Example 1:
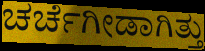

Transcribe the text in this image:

ಚರ್ಚೆಗೀಡಾಗಿತ್ತು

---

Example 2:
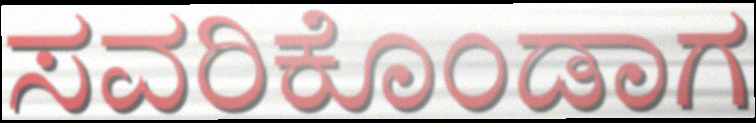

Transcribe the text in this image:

ಸವರಿಕೊಂಡಾಗ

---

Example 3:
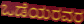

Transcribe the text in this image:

ಒಡೆಯರವರ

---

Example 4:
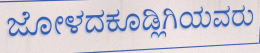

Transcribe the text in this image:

ಜೋಳದಕೂಡ್ಲಿಗಿಯವರು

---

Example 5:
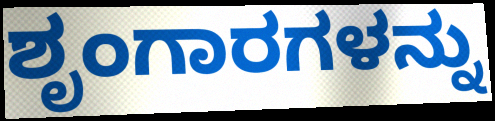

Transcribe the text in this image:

ಶೃಂಗಾರಗಳನ್ನು